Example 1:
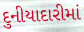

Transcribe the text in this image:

દુનીયાદારીમાં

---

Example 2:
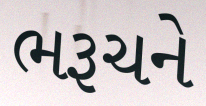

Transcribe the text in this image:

ભરૂચને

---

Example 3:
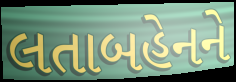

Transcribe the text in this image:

લતાબહેનને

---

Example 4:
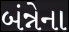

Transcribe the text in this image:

બંન્નેના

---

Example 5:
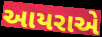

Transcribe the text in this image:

આયરાએ